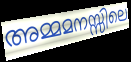
അമ്മമനസ്സിലെ